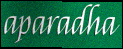
aparadha